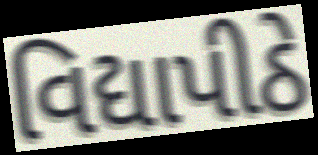
વિદ્યાપીઠે